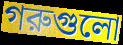
গরুগুলো